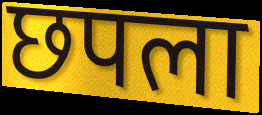
छपला